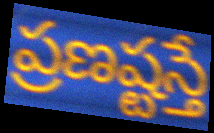
ప్రణష్టస్తే